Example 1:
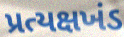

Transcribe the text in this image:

પ્રત્યક્ષખંડ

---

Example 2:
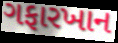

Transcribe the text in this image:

ગફારખાન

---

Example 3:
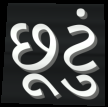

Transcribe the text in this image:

છૂટું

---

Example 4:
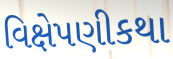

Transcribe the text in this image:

વિક્ષેપણીકથા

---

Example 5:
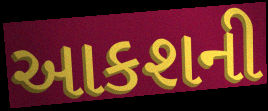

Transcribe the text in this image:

આકશની